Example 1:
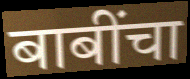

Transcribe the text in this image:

बाबींचा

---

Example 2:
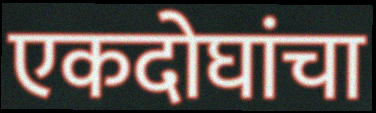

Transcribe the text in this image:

एकदोघांचा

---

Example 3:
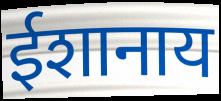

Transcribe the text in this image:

ईशानाय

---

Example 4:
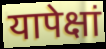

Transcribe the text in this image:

यापेक्षां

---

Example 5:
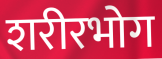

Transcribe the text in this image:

शरीरभोग